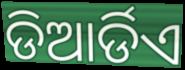
ଡିଆର୍ଡିଏ